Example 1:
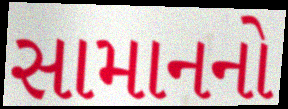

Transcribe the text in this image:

સામાનનો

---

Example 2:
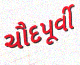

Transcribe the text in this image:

ચૌદપૂર્વી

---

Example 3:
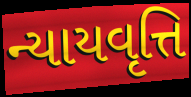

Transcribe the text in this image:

ન્યાયવૃત્તિ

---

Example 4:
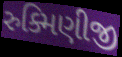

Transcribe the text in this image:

રુક્મિણીજી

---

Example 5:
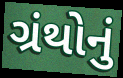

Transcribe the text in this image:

ગ્રંથોનું